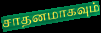
சாதனமாகவும்